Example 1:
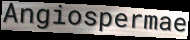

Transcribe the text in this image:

Angiospermae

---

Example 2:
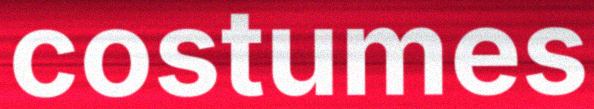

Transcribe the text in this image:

costumes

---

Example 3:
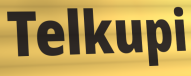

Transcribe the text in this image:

Telkupi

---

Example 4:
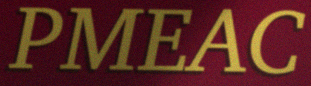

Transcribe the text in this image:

PMEAC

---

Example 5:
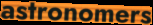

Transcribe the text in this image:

astronomers